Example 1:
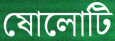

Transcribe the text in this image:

ষোলোটি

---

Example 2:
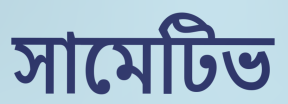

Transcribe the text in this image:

সামেটিভ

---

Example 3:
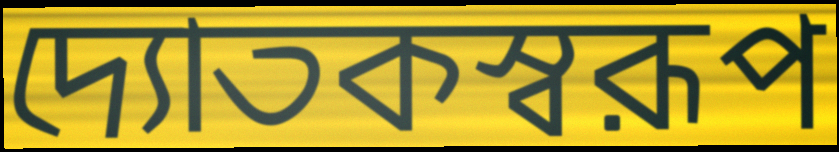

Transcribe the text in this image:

দ্যোতকস্বরূপ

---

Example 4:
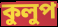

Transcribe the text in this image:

কুলুপ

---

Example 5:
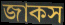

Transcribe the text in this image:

জাকস